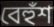
বেহুঁশ